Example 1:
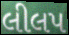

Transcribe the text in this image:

લીલપ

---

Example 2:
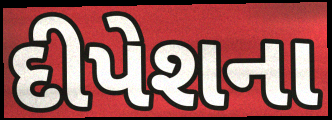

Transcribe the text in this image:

દીપેશના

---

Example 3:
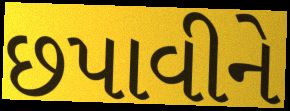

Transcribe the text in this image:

છપાવીને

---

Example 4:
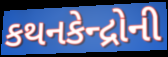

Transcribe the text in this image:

કથનકેન્દ્રોની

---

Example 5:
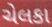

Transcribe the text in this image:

ચેલકા